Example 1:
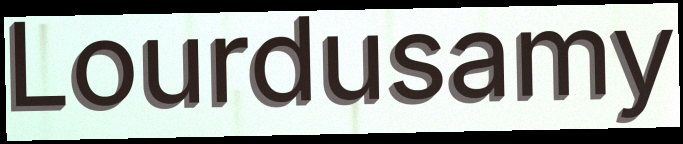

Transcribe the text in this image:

Lourdusamy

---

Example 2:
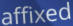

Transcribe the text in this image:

affixed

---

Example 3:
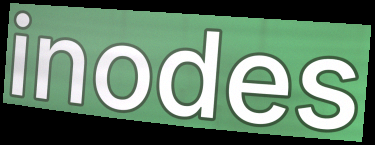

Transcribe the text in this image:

inodes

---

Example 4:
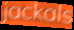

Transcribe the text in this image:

jackals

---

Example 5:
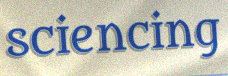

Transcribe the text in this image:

sciencing